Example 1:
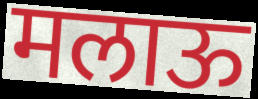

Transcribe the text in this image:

मलाऊ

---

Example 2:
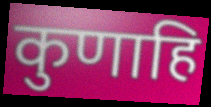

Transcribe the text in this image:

कुणाहि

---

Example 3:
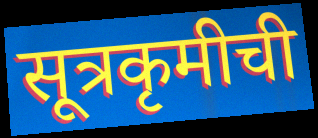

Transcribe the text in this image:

सूत्रकृमीची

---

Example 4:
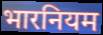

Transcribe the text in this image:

भारनियम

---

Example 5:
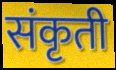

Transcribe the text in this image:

संकृती